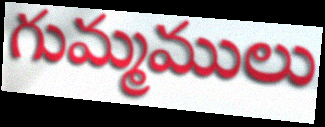
గుమ్మములు